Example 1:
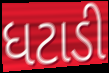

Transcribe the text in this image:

ધટાડી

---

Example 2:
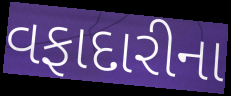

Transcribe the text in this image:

વફાદારીના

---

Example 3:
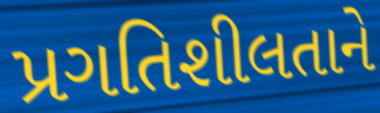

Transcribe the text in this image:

પ્રગતિશીલતાને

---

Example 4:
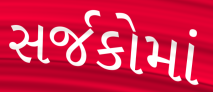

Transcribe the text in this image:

સર્જકોમાં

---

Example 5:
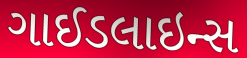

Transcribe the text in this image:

ગાઈડલાઇન્સ